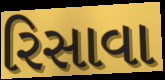
રિસાવા